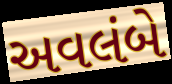
અવલંબે